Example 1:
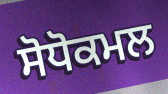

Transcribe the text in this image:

ਸੋਧੋਕਮਲ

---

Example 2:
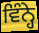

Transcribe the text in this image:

ਵਿੰਨ੍ਹੇ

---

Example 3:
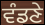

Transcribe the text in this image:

ਵੰਡਣੇ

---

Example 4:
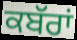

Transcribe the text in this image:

ਕਬੱਰਾਂ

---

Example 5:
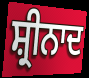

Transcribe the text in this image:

ਸ਼੍ਰੀਨਾਦ